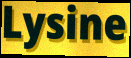
Lysine